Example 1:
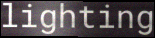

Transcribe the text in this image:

lighting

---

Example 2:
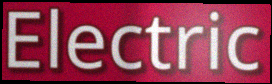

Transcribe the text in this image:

Electric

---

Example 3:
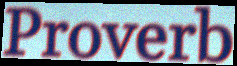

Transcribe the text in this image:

Proverb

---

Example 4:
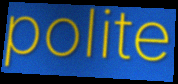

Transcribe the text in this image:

polite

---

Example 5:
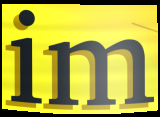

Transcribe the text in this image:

im